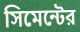
সিমেন্টের